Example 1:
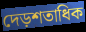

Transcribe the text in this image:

দেড়শতাধিক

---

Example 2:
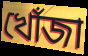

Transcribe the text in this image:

খোঁজা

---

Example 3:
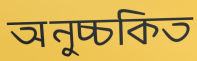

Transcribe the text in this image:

অনুচ্চকিত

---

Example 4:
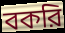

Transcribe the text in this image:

বকরি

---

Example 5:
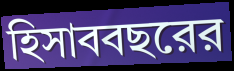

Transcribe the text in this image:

হিসাববছরের